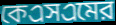
কেএসএমের